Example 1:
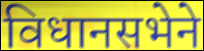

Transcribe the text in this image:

विधानसभेने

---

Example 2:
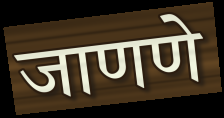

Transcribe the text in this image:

जाणणे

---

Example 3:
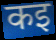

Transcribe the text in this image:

कइ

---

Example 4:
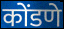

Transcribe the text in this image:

कोंडणे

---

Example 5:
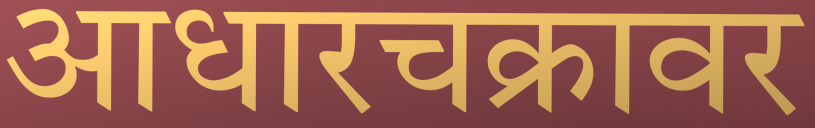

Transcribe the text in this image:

आधारचक्रावर